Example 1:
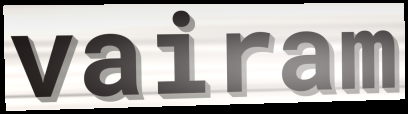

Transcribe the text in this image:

vairam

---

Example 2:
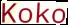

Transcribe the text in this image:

Koko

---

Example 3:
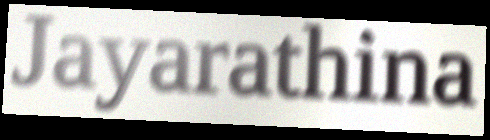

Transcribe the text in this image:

Jayarathina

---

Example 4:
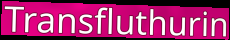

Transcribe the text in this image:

Transfluthurin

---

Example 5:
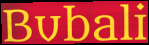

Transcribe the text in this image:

Bubali